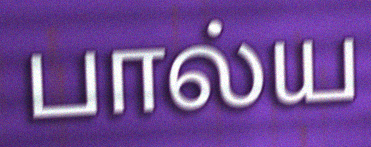
பால்ய